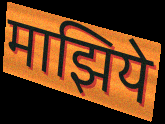
माझिये